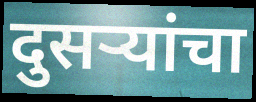
दुसऱ्यांचा